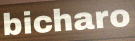
bicharo